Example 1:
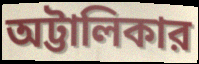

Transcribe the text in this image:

অট্টালিকার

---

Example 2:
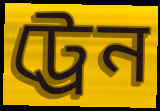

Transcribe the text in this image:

ট্রেন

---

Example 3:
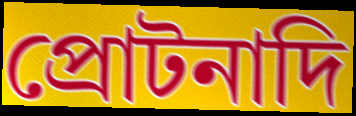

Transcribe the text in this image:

প্রোটনাদি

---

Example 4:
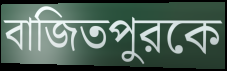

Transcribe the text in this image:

বাজিতপুরকে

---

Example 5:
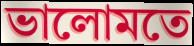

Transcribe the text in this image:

ভালোমতে